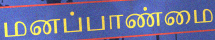
மனப்பாண்மை